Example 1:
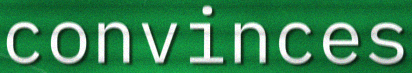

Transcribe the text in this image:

convinces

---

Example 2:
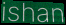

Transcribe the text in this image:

ishan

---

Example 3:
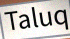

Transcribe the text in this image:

Taluq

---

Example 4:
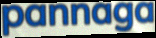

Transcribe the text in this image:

pannaga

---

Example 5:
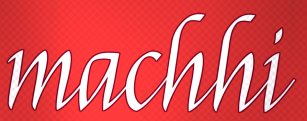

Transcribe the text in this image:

machhi